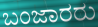
ಬಂಜಾರರು